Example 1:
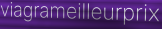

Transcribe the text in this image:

viagrameilleurprix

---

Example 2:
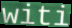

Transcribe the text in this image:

witi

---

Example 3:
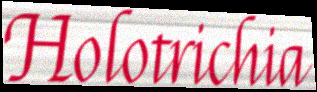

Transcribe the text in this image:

Holotrichia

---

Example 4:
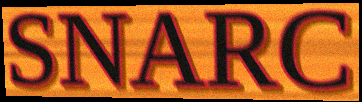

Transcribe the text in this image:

SNARC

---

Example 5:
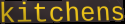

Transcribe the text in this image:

kitchens